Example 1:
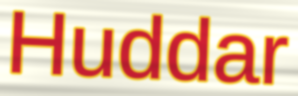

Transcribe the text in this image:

Huddar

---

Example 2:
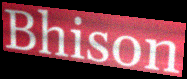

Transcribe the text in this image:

Bhison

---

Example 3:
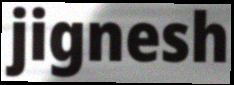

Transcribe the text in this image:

jignesh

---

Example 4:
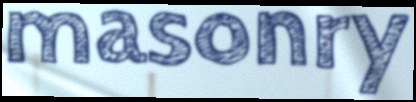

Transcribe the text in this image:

masonry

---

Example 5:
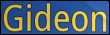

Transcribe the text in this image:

Gideon